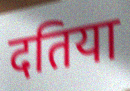
दतिया